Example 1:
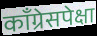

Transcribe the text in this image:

कॉंग्रेसपेक्षा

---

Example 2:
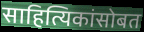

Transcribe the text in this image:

साहित्यिकांसोबत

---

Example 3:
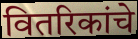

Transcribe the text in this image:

वितरिकांचे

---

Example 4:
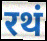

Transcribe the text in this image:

रथं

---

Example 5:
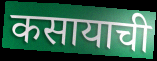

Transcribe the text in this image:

कसायाची